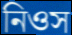
নিওস